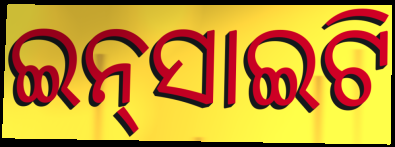
ଇନ୍‌ସାଇଟି